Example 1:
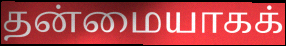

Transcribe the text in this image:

தன்மையாகக்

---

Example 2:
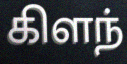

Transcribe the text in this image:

கிளந்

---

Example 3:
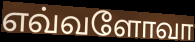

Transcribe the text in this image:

எவ்வளோவா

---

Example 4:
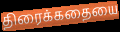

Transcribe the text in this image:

திரைக்கதையை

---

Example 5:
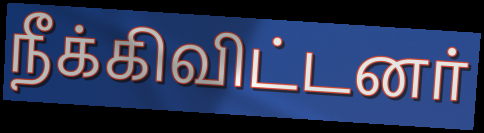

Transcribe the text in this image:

நீக்கிவிட்டனர்